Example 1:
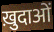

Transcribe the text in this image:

ख़ुदाओं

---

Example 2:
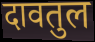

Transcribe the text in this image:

दावतुल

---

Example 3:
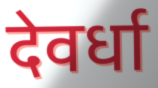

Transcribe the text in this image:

देवर्धा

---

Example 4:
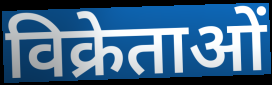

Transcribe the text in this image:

विक्रेताओं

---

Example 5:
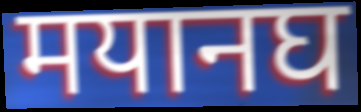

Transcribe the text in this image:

मयानघ